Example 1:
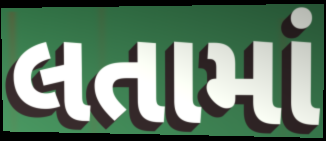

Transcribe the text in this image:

લતામાં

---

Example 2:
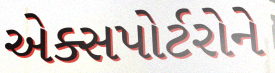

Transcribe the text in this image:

એક્સપોર્ટરોને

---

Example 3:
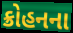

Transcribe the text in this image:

ક્રોહનના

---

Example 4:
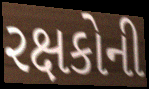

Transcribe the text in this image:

રક્ષકોની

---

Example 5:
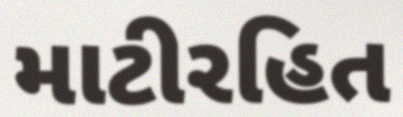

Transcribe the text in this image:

માટીરહિત